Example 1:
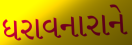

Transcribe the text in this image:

ધરાવનારાને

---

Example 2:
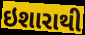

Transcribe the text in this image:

ઇશારાથી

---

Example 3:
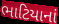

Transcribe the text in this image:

ભાટિયાનાં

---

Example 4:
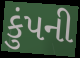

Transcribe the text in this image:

કુંપની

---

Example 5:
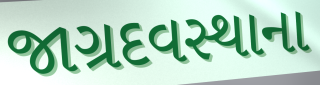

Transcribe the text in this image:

જાગ્રદવસ્થાના